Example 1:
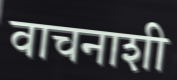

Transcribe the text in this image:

वाचनाशी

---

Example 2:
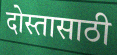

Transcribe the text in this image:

दोस्तासाठी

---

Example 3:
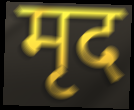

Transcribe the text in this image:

मृद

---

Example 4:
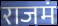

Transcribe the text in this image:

राजमं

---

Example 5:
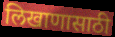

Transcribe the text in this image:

लिखाणासाठी